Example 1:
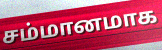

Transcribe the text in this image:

சம்மானமாக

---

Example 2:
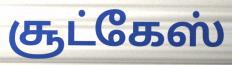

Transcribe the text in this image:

சூட்கேஸ்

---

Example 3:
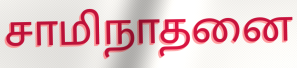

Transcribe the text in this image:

சாமிநாதனை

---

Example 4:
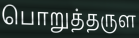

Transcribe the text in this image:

பொறுத்தருள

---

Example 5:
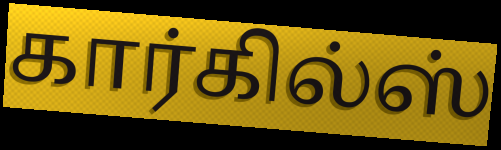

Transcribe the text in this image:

கார்கில்ஸ்